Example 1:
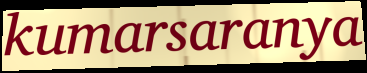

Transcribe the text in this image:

kumarsaranya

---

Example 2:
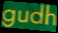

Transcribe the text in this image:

gudh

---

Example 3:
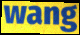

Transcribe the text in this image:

wang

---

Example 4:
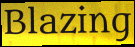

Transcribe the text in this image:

Blazing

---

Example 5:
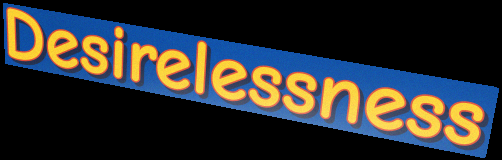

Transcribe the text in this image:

Desirelessness